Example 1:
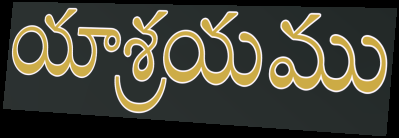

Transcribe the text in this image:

యాశ్రయము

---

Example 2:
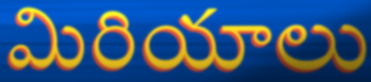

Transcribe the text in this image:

మిరియాలు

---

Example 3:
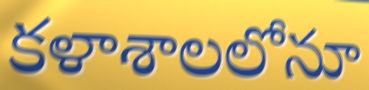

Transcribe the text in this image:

కళాశాలలోనూ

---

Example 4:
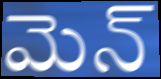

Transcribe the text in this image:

మెన్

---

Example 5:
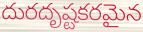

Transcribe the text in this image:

దురదృష్టకరమైన